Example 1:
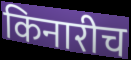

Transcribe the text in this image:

किनारीच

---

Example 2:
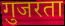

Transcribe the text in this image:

गुजरता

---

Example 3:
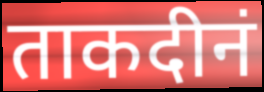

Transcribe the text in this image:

ताकदीनं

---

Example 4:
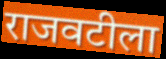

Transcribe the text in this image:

राजवटीला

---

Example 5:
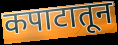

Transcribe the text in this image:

कपाटातून